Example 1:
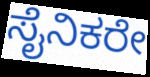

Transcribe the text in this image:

ಸೈನಿಕರೇ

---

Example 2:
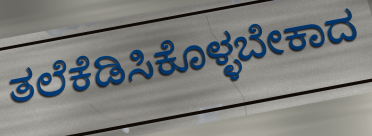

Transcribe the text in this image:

ತಲೆಕೆಡಿಸಿಕೊಳ್ಳಬೇಕಾದ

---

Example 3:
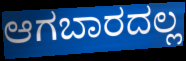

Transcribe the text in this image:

ಆಗಬಾರದಲ್ಲ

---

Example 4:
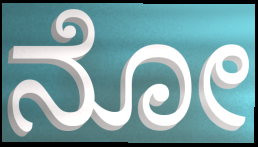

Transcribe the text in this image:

ನೋ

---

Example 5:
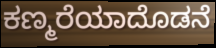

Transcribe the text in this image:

ಕಣ್ಮರೆಯಾದೊಡನೆ